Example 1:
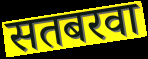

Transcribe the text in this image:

सतबरवा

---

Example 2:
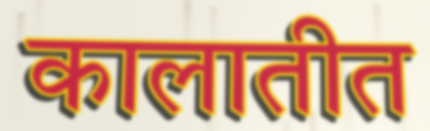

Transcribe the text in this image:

कालातीत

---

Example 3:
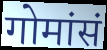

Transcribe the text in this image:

गोमांसं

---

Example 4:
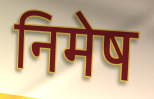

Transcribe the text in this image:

निमेष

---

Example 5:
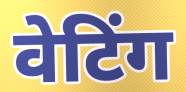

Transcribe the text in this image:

वेटिंग